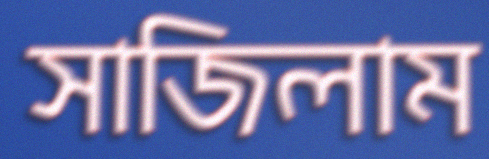
সাজিলাম